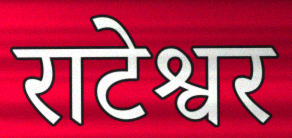
राटेश्वर